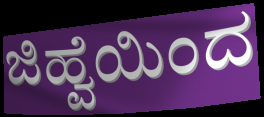
ಜಿಹ್ವೆಯಿಂದ